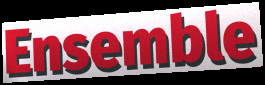
Ensemble